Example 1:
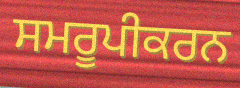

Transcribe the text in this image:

ਸਮਰੂਪੀਕਰਨ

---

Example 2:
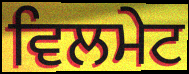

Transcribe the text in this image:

ਵਿਲਮੇਟ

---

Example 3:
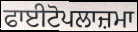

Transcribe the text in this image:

ਫਾਈਟੋਪਲਾਜ਼ਮਾ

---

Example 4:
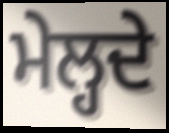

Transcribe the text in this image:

ਮੇਲ੍ਹਦੇ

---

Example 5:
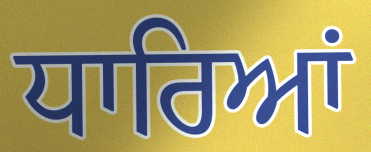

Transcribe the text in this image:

ਧਾਰਿਆਂ